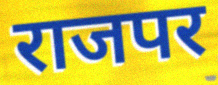
राजपर